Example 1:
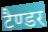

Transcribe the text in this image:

टैण्डर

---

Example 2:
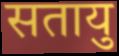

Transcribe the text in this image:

सतायु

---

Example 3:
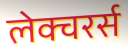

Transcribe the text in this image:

लेक्चरर्स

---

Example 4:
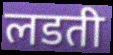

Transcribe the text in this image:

लडती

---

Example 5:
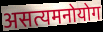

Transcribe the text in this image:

असत्यमनोयोग